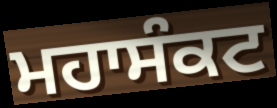
ਮਹਾਸੰਕਟ